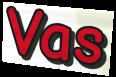
Vas